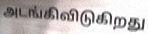
அடங்கிவிடுகிறது